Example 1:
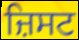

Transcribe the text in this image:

ਜ਼ਿਸਟ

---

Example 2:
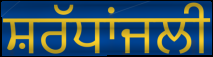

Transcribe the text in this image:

ਸ਼ਰੱਧਾਂਜਲੀ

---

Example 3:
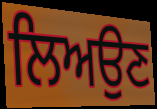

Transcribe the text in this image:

ਲਿਅਉਣ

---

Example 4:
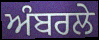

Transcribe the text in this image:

ਅੰਬਰਲੇ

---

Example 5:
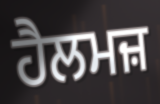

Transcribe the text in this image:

ਹੈਲਮਜ਼